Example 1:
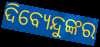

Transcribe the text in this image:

ଦିବ୍ୟେନ୍ଦୁଙ୍କର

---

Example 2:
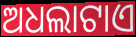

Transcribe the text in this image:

ଅଧଲାଟାଏ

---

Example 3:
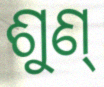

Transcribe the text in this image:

ଶୁଣ୍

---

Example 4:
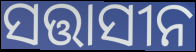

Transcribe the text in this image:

ସତ୍ତାସୀନ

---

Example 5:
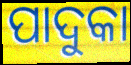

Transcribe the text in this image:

ପାଦୁକା